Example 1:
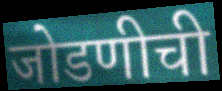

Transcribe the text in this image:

जोडणीची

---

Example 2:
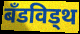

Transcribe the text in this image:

बँडविड्थ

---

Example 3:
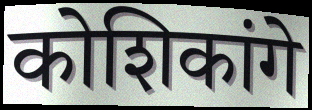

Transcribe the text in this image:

कोशिकांगे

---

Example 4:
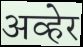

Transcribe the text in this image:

अव्हेर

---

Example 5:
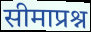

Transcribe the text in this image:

सीमाप्रश्न